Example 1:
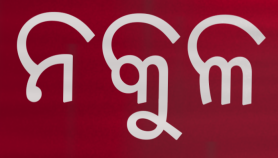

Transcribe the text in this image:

ନକୁଳ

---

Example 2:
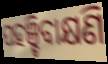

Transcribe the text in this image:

ପହଞ୍ଚିବାକ୍ଷଣି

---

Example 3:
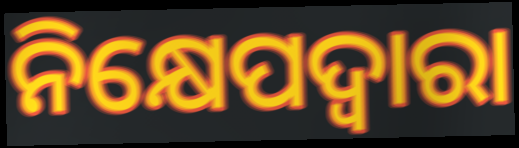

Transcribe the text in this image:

ନିକ୍ଷେପଦ୍ୱାରା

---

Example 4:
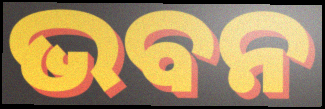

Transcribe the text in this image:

ଭବନ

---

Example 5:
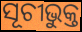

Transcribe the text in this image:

ସୂଚୀଭୁକ୍ତ